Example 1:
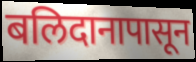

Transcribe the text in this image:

बलिदानापासून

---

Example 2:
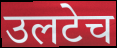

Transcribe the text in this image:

उलटेच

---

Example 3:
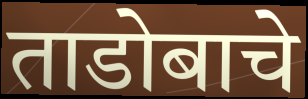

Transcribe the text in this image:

ताडोबाचे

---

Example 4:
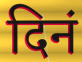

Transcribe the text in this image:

दिनं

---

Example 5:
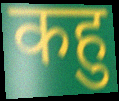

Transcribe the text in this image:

कहु